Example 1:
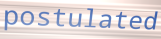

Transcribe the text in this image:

postulated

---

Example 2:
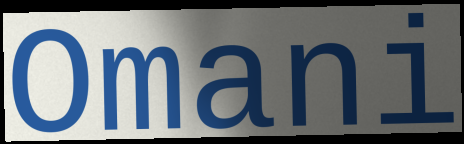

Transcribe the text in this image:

Omani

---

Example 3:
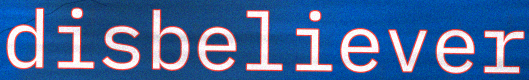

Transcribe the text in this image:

disbeliever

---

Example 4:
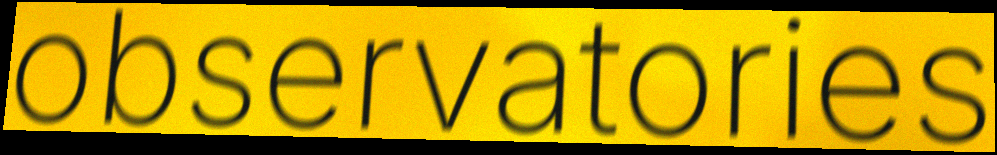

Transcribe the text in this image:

observatories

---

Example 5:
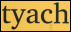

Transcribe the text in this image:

tyach